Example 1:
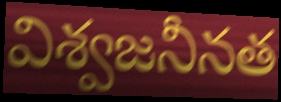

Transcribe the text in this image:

విశ్వజనీనత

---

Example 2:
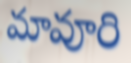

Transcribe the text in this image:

మావూరి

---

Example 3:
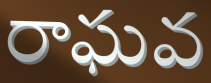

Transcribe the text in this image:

రాఘవ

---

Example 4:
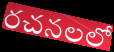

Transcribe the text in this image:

రచనలలో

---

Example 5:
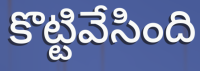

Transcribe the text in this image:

కొట్టివేసింది